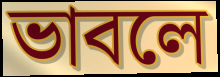
ভাবলে